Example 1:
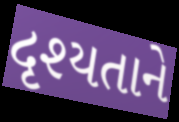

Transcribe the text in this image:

દૃશ્યતાને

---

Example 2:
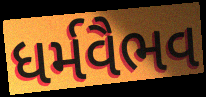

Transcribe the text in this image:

ધર્મવૈભવ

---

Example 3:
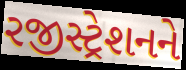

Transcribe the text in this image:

રજીસ્ટ્રેશનને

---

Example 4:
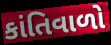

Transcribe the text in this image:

કાંતિવાળો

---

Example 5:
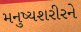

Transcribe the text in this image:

મનુષ્યશરીરને